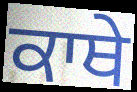
ਕਾਥੇ